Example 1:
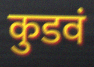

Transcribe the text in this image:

कुडवं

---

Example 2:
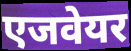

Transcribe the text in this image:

एजवेयर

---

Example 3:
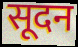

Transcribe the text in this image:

सूदन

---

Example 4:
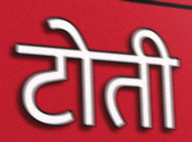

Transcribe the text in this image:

टोती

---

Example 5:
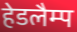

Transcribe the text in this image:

हेडलैम्प